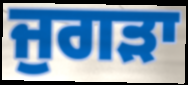
ਜੁਗੜਾ